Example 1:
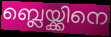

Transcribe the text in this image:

ബ്ലെയ്ക്കിനെ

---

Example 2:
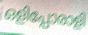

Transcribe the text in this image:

ഒളിപ്പോരാളി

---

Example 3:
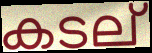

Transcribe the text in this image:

കടല്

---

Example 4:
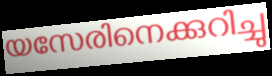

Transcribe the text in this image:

യസേരിനെക്കുറിച്ചു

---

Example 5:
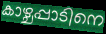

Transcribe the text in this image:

കാഴ്ചപ്പാടിനെ